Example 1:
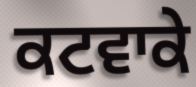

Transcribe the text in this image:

ਕਟਵਾਕੇ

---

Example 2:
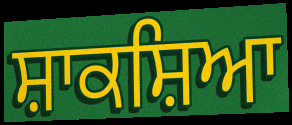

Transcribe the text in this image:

ਸ਼ਾਕਸ਼ਿਆ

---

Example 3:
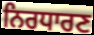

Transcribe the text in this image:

ਨਿਰਧਾਰਣ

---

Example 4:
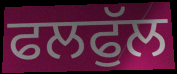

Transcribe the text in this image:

ਫਲਫੁੱਲ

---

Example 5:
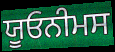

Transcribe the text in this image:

ਯੂਓਨੀਮਸ